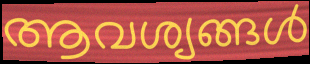
ആവശ്യങ്ങൾ